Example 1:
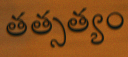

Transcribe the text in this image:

తత్సత్యం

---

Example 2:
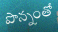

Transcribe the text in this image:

పొన్నంతో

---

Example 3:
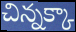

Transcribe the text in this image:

చిన్నక్కా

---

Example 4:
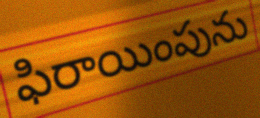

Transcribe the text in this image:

ఫిరాయింపును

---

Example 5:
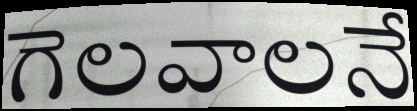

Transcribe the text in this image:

గెలవాలనే